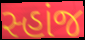
સ્હાંજ